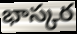
భాస్కర